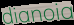
dianoia